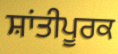
ਸ਼ਾਂਤੀਪੂਰਕ